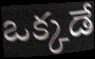
ఒక్కడే